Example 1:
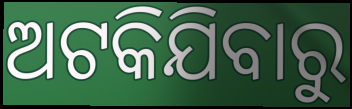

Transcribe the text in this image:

ଅଟକିଯିବାରୁ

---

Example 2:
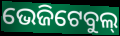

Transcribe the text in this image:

ଭେଜିଟେବୁଲ୍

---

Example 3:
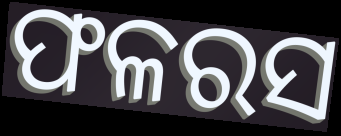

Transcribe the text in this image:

ଫଳରସ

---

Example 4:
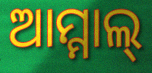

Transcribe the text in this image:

ଆମ୍ମାଲ୍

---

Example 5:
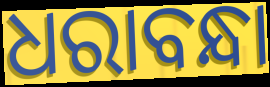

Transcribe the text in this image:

ଧରାବନ୍ଧା